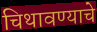
चिथावण्याचे